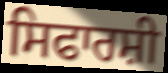
ਸਿਫਾਰਸ਼ੀ